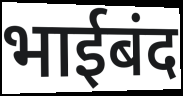
भाईबंद